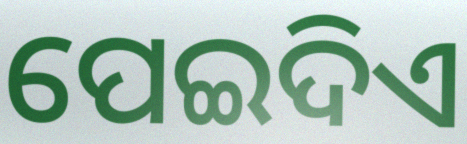
ପେଇଦିଏ